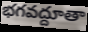
భగవద్దూతా